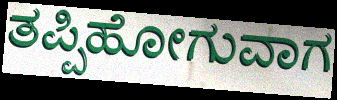
ತಪ್ಪಿಹೋಗುವಾಗ